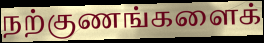
நற்குணங்களைக்